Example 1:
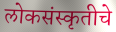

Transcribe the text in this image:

लोकसंस्कृतीचे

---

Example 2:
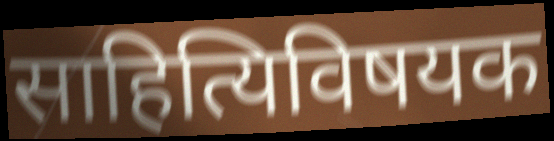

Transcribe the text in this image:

साहित्यिविषयक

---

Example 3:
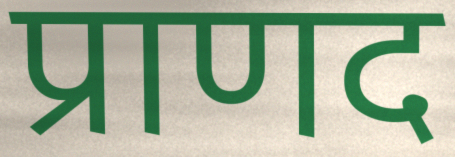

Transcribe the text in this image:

प्राणद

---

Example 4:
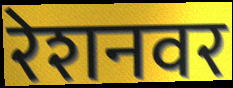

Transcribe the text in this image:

रेशनवर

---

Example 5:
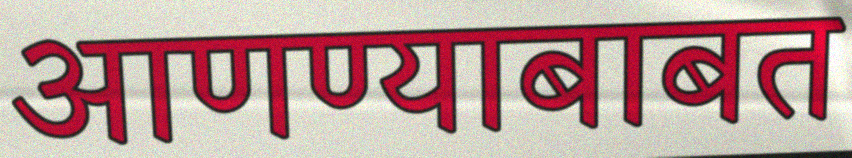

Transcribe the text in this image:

आणण्याबाबत